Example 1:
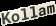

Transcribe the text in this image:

Kollam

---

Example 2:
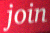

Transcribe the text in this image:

join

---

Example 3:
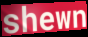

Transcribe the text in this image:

shewn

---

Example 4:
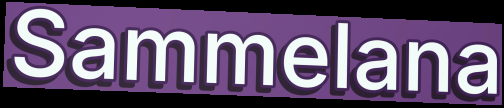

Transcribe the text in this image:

Sammelana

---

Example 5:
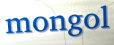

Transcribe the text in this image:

mongol